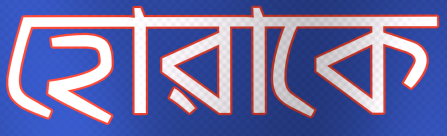
হোৱাকে